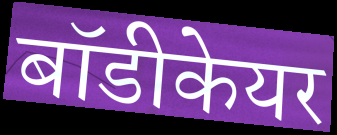
बॉडीकेयर